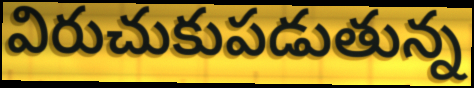
విరుచుకుపడుతున్న